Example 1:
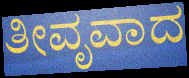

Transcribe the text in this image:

ತೀವೃವಾದ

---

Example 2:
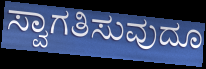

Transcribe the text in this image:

ಸ್ವಾಗತಿಸುವುದೂ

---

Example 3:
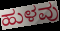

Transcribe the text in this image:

ಹುಳವು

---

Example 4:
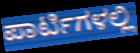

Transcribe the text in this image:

ಪಾರ್ಟಿಗಳಲ್ಲಿ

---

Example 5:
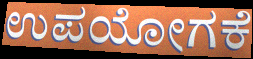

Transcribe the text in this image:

ಉಪಯೋಗಕೆ